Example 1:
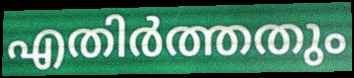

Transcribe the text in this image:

എതിർത്തതും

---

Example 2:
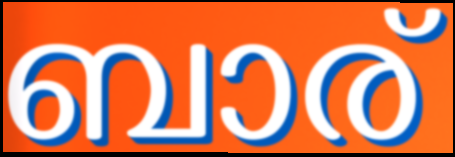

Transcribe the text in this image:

ബാര്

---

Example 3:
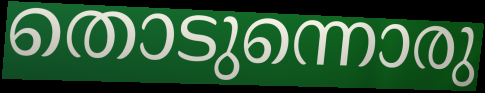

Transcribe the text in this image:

തൊടുന്നൊരു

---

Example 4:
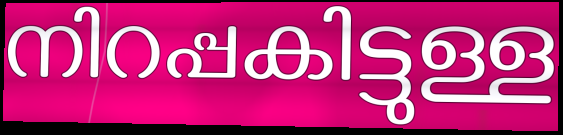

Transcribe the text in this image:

നിറപ്പകിട്ടുള്ള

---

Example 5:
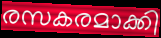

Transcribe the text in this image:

രസകരമാക്കി